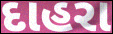
દાહરા